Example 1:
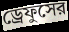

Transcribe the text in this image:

ড্রেফুসের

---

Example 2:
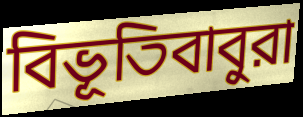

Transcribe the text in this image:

বিভূতিবাবুরা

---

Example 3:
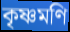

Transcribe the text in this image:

কৃষ্ণমণি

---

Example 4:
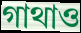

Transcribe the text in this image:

গাথাও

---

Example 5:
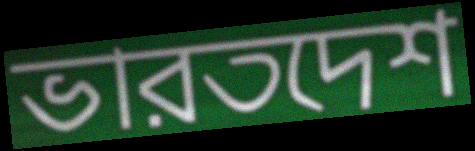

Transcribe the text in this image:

ভারতদেশ